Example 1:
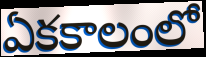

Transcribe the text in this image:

ఏకకాలంలో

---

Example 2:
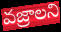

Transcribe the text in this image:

వజ్రాలని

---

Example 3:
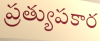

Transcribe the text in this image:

ప్రత్యుపకార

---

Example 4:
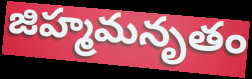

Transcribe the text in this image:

జిహ్మమనృతం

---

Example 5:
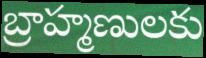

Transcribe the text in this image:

బ్రాహ్మణులకు